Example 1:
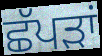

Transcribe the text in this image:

ਛੱਪੜਾਂ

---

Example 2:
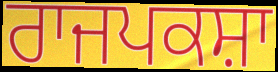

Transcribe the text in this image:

ਰਾਜਪਕਸ਼ਾ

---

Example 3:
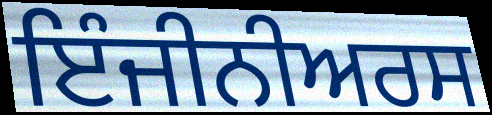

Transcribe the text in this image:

ਇੰਜੀਨੀਅਰਸ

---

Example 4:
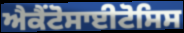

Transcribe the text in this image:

ਐਕੈਂਟੋਸਾਈਟੋਸਿਸ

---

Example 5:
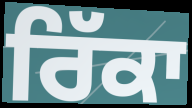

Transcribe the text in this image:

ਰਿੱਕਾ